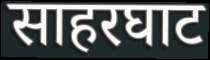
साहरघाट